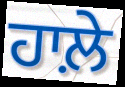
ਹਾਲ਼ੇ